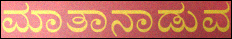
ಮಾತಾನಾಡುವ